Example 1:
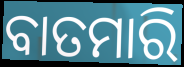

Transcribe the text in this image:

ବାତମାରି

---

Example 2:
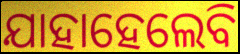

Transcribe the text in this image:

ଯାହାହେଲେବି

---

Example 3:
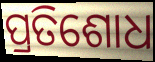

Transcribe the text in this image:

ପ୍ରତିଶୋଧ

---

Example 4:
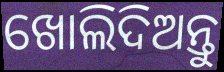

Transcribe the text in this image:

ଖୋଲିଦିଅନ୍ତୁ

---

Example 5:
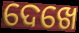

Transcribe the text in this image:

ଦେଖେ